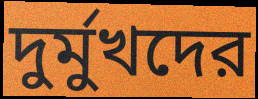
দুর্মুখদের